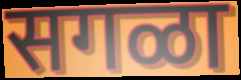
सगळा